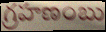
గ్రహణంబు